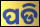
ପଡି